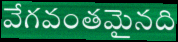
వేగవంతమైనది